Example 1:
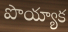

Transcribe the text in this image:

పొయ్యాక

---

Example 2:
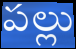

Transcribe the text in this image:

పల్లు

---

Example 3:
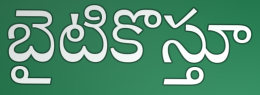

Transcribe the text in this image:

బైటికొస్తూ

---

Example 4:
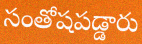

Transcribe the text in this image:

సంతోషపడ్డారు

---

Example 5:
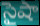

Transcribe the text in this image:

సైషా